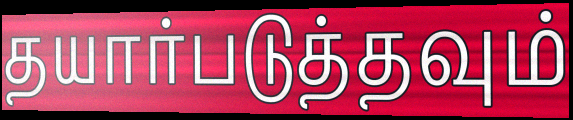
தயார்படுத்தவும்